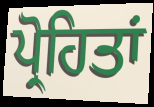
ਪ੍ਰੋਹਿਤਾਂ